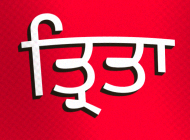
ਤ੍ਰਿਤਾ